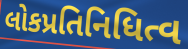
લોકપ્રતિનિધિત્વ